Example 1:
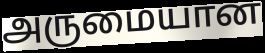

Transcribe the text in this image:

அருமையான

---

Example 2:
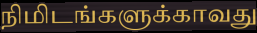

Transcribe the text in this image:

நிமிடங்களுக்காவது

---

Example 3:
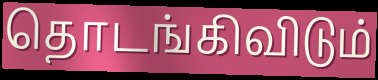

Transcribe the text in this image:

தொடங்கிவிடும்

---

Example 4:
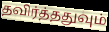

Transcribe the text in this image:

தவிர்த்ததுவும்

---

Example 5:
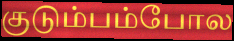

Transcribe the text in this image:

குடும்பம்போல